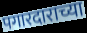
पगारदाराच्या